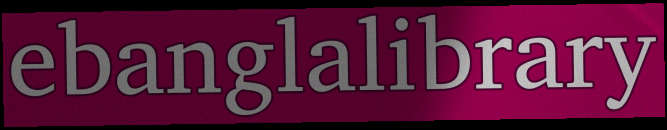
ebanglalibrary